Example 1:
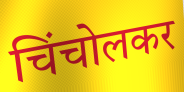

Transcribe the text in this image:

चिंचोलकर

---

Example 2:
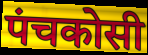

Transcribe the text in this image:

पंचकोसी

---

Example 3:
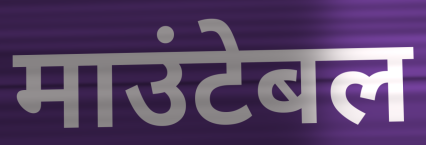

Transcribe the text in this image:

माउंटेबल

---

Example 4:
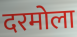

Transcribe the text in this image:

दरमोला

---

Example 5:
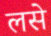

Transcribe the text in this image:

लसे